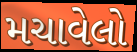
મચાવેલો